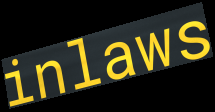
inlaws